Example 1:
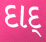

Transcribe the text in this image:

દાદ્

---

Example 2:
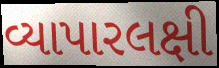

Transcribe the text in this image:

વ્યાપારલક્ષી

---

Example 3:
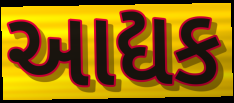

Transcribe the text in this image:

આદ્યક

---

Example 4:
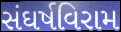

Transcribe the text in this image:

સંઘર્ષવિરામ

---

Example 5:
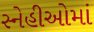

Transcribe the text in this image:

સ્નેહીઓમાં